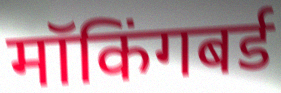
मॉकिंगबर्ड